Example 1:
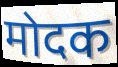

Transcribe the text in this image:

मोदक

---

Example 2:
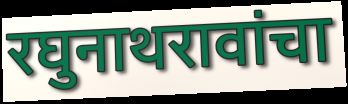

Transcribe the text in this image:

रघुनाथरावांचा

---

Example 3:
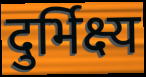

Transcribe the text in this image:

दुर्भिक्ष्य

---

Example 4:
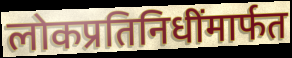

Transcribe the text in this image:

लोकप्रतिनिधींमार्फत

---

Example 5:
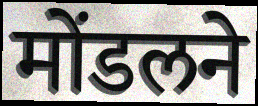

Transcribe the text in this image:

मोंडलने